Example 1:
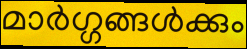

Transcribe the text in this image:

മാർഗ്ഗങ്ങൾക്കും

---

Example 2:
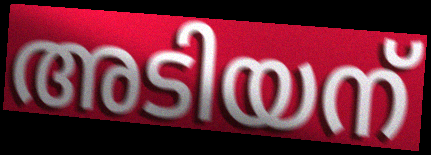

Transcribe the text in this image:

അടിയന്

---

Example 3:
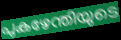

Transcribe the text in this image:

പുകഴേന്തിയുടെ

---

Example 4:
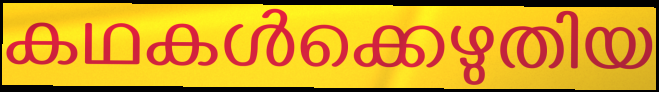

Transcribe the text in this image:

കഥകൾക്കെഴുതിയ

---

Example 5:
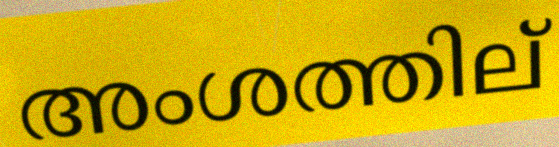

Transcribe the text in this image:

അംശത്തില്